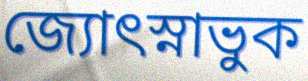
জ্যোৎস্নাভুক